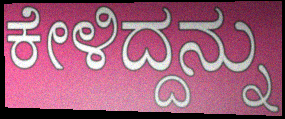
ಕೇಳಿದ್ದನ್ನು